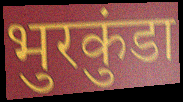
भुरकुंडा